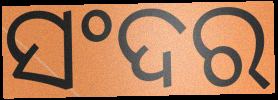
ସଂଦର